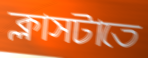
ক্লাসটাতে